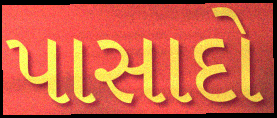
પાસાદો